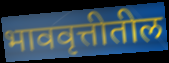
भाववृत्तीतील